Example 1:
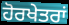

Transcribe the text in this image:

ਹੋਰਖੇਤਰਾਂ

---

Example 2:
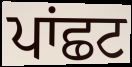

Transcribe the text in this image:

ਪਾਂਛਟ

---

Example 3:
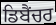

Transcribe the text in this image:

ਡਿਬੈਂਚਰ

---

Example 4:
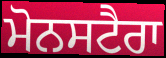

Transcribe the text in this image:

ਮੋਨਸਟੈਰਾ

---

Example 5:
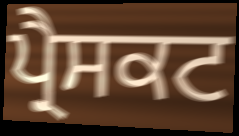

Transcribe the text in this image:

ਪ੍ਰੈਸਕਟ